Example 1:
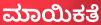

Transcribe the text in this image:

ಮಾಯಿಕತೆ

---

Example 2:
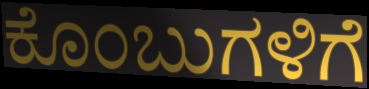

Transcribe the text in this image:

ಕೊಂಬುಗಳಿಗೆ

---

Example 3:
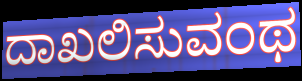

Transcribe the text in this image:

ದಾಖಲಿಸುವಂಥ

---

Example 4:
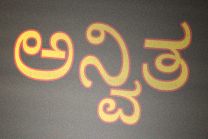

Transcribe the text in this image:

ಅನ್ವಿತ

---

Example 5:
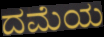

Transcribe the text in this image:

ದಮೆಯ